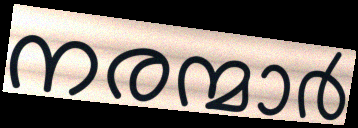
നരന്മാർ